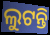
ଲୁଟନ୍ତି